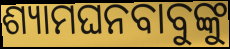
ଶ୍ୟାମଘନବାବୁଙ୍କୁ